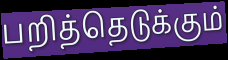
பறித்தெடுக்கும்